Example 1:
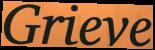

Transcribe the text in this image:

Grieve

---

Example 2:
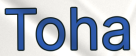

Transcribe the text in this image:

Toha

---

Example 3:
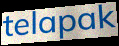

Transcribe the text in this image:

telapak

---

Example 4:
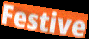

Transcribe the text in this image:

Festive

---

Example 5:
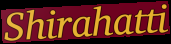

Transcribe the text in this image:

Shirahatti